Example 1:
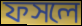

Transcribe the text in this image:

ফসলে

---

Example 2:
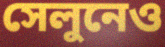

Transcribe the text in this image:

সেলুনেও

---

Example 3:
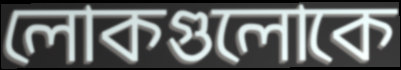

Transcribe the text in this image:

লোকগুলোকে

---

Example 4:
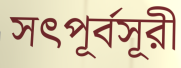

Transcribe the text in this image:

সৎপূর্বসূরী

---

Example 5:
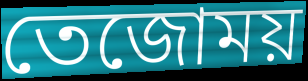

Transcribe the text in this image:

তেজোময়